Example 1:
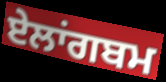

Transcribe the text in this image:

ਏਲਾਂਗਬਮ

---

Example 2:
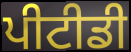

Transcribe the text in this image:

ਪੀਟੀਡੀ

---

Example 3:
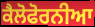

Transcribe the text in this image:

ਕੈਲੋਫੋਰਨੀਆ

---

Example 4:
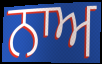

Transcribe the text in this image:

ਨਾਅ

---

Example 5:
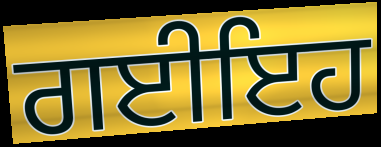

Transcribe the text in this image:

ਗਈਇਹ